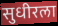
सुधीरला